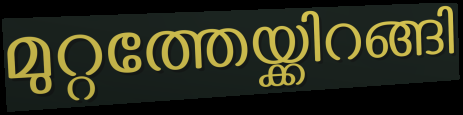
മുറ്റത്തേയ്ക്കിറങ്ങി